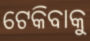
ଟେକିବାକୁ